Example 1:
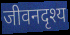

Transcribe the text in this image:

जीवनदृश्य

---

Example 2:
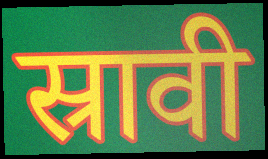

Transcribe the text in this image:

स्रावी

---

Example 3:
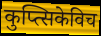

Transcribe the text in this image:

कुप्त्सिकेविच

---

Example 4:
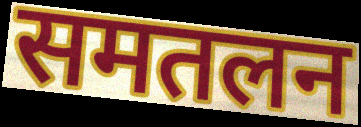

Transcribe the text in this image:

समतलन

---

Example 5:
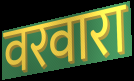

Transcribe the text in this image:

वरवारा